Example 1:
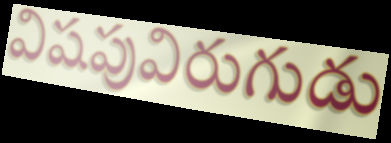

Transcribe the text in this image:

విషపువిరుగుడు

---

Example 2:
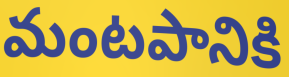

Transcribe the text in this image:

మంటపానికి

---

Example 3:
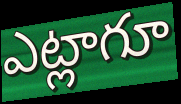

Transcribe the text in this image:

ఎట్లాగూ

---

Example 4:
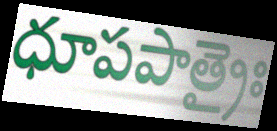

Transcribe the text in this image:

ధూపపాత్రైః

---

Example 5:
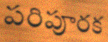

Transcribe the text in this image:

పరిపూరక